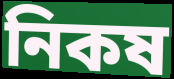
নিকষ